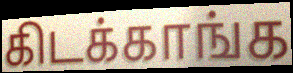
கிடக்காங்க